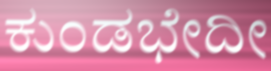
ಕುಂಡಭೇದೀ